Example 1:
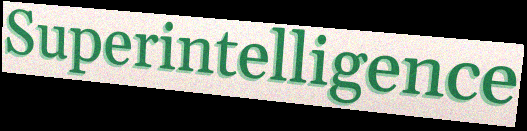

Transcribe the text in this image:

Superintelligence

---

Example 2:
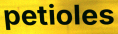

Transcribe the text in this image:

petioles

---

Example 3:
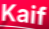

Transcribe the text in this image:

Kaif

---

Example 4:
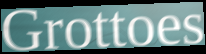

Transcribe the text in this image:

Grottoes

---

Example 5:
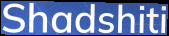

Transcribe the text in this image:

Shadshiti